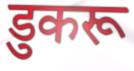
डुकरू